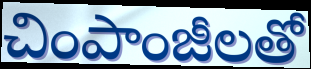
చింపాంజీలతో